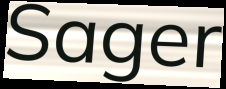
Sager